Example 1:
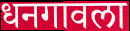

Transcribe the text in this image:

धनगावला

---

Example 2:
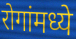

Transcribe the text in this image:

रोगांमध्ये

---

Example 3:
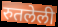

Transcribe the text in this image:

रुतलेली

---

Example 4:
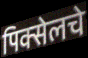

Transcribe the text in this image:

पिक्सेलचे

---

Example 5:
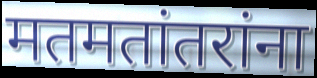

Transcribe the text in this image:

मतमतांतरांना